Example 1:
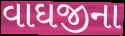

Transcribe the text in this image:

વાઘજીના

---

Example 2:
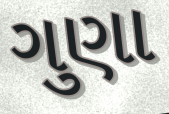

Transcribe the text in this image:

ગુણા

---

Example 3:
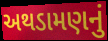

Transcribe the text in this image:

અથડામણનું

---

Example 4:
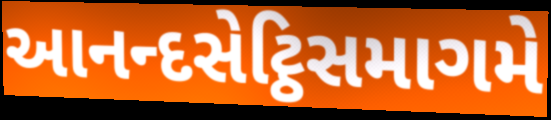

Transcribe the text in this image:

આનન્દસેટ્ઠિસમાગમે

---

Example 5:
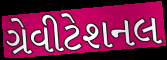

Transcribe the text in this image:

ગ્રેવીટેશનલ